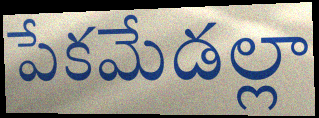
పేకమేడల్లా